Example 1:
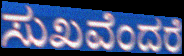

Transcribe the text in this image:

ಸುಖವೆಂದರೆ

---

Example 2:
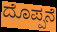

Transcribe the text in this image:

ದೊಪ್ಪನೆ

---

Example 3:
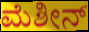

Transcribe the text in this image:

ಮೆಶೀನ್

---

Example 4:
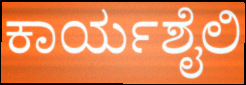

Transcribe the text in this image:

ಕಾರ್ಯಶೈಲಿ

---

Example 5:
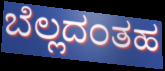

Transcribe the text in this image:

ಬೆಲ್ಲದಂತಹ